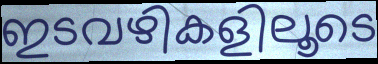
ഇടവഴികളിലൂടെ